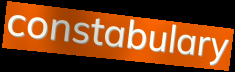
constabulary